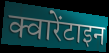
क्वारेंटाइन